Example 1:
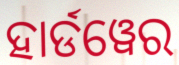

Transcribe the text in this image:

ହାର୍ଡୱେର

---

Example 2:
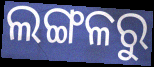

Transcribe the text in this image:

ଲଙ୍ଗଳରୁ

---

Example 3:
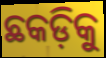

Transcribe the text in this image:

ଛକଡ଼ିକୁ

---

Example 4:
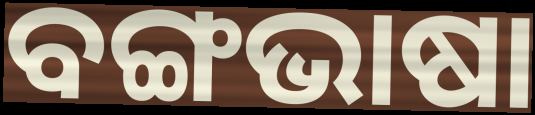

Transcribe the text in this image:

ବଙ୍ଗଭାଷା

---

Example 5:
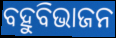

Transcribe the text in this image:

ବହୁବିଭାଜନ